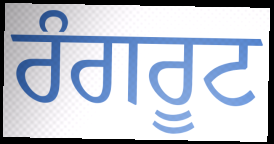
ਰੰਗਰੂਟ